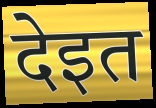
देइत